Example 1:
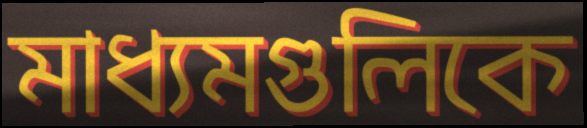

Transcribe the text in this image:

মাধ্যমগুলিকে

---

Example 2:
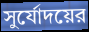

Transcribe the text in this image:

সুর্যোদয়ের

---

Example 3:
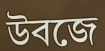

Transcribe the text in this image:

উবজে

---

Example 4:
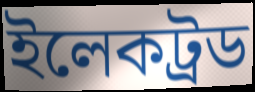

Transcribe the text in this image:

ইলেকট্রড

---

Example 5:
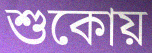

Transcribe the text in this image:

শুকোয়